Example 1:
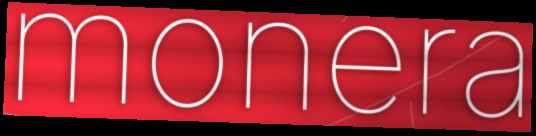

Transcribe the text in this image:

monera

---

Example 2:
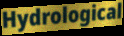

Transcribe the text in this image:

Hydrological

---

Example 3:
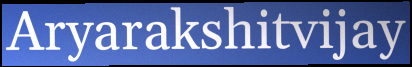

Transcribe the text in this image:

Aryarakshitvijay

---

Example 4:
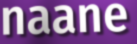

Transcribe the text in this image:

naane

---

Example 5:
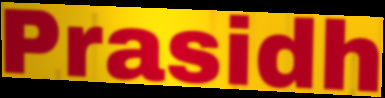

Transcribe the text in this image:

Prasidh